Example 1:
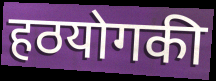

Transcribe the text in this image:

हठयोगकी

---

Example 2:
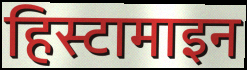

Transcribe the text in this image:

हिस्टामाइन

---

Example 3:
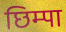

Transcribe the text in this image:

छिम्पा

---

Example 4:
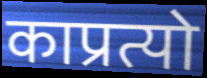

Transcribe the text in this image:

काप्रत्यो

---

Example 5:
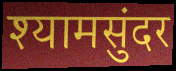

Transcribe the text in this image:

श्यामसुंदर